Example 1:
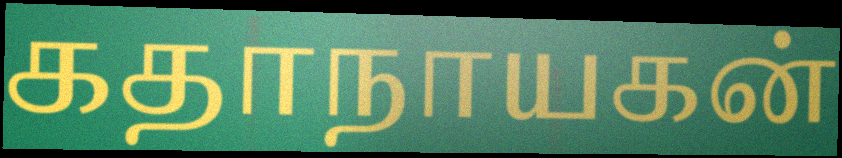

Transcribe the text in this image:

கதாநாயகன்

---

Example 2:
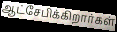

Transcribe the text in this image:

ஆட்சேபிக்கிறார்கள்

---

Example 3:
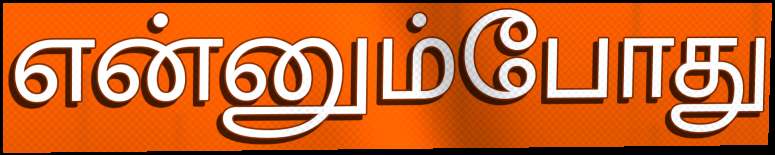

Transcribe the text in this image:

என்னும்போது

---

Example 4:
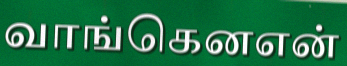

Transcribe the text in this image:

வாங்கெனஎன்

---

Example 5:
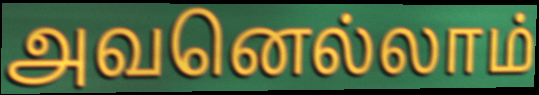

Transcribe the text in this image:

அவனெல்லாம்